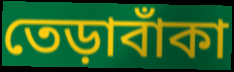
তেড়াবাঁকা